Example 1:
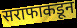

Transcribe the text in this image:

सराफाकडून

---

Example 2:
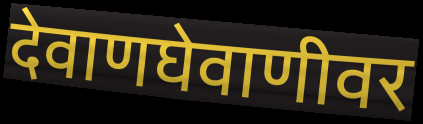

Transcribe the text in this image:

देवाणघेवाणीवर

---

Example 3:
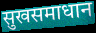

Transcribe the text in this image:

सुखसमाधान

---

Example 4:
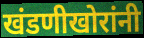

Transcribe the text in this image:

खंडणीखोरांनी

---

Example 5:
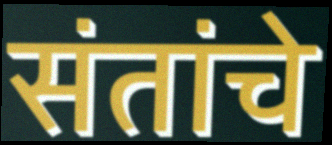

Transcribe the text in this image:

संतांचे